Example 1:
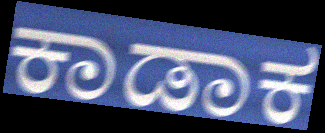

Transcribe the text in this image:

ಕಾಡಾಕ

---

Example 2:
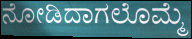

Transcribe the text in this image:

ನೋಡಿದಾಗಲೊಮ್ಮೆ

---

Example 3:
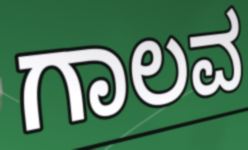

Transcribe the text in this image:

ಗಾಲವ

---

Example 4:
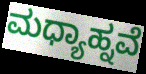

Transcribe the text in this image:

ಮಧ್ಯಾಹ್ನವೆ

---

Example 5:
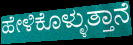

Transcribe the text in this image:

ಹೇಳಿಕೊಳ್ಳುತ್ತಾನೆ